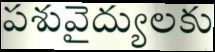
పశువైద్యులకు